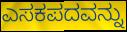
ಎಸಕಪದವನ್ನು